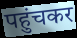
पहुंचकर